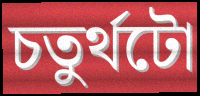
চতুৰ্থটো